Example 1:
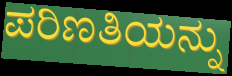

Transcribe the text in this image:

ಪರಿಣತಿಯನ್ನು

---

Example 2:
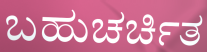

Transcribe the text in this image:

ಬಹುಚರ್ಚಿತ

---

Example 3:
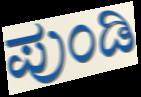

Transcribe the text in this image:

ಪುಂಡಿ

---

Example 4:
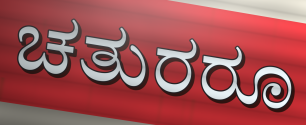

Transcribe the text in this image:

ಚತುರರೂ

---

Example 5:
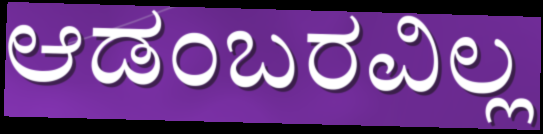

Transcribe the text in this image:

ಆಡಂಬರವಿಲ್ಲ